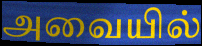
அவையில்